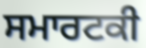
ਸਮਾਰਟਕੀ